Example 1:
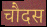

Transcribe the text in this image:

चौदस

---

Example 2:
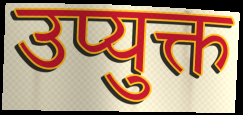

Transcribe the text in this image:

उप्युक्त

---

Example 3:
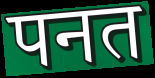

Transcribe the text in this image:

पनत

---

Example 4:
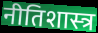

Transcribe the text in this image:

नीतिशास्त्र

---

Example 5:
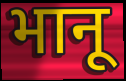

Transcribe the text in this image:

भानू